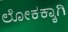
ಲೋಕಕ್ಕಾಗಿ